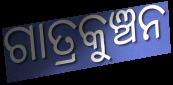
ଗାତ୍ରକୁଞ୍ଚନ